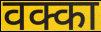
वक्का